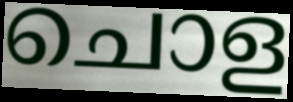
ചൊള